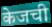
केजची